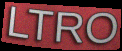
LTRO